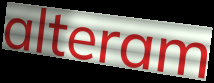
alteram